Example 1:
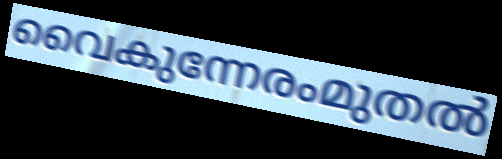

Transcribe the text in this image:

വൈകുന്നേരംമുതൽ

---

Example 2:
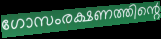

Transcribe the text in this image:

ഗോസംരക്ഷണത്തിന്റെ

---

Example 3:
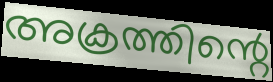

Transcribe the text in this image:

അക്രത്തിന്റെ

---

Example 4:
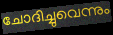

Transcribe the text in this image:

ചോദിച്ചുവെന്നും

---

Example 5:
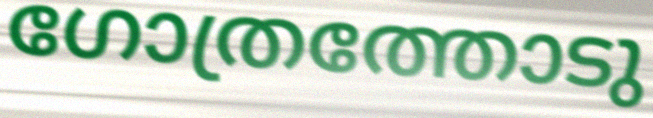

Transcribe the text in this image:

ഗോത്രത്തോടു